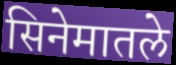
सिनेमातले